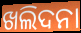
ଖଲିଦନା